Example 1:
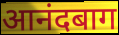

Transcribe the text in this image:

आनंदबाग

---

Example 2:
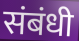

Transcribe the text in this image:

संबंधी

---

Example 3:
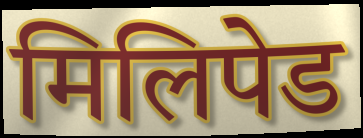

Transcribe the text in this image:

मिलिपेड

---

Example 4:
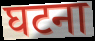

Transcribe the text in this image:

घटना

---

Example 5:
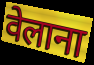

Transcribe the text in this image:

वेलाना